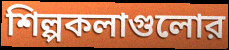
শিল্পকলাগুলোর